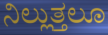
ನಿಲ್ಲುತ್ತಲೂ